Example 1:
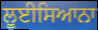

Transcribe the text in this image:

ਲੂਈਸਿਆਨਾ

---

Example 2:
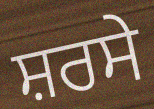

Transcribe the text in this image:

ਸ਼ਰਸੇ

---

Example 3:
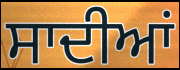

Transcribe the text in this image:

ਸਾਦੀਆਂ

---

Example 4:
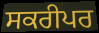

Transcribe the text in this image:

ਸਕਰੀਪਰ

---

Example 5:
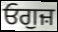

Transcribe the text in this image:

ਓਗੁਜ਼